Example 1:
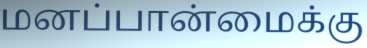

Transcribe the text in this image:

மனப்பான்மைக்கு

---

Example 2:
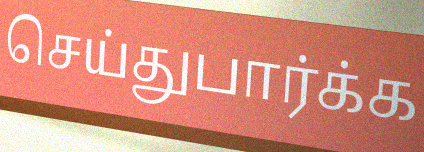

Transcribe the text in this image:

செய்துபார்க்க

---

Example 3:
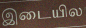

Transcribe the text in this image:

இடையில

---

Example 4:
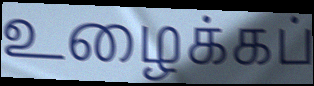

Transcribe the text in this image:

உழைக்கப்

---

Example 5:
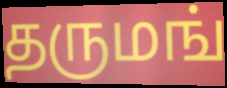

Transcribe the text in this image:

தருமங்